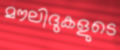
മൗലിദുകളുടെ